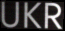
UKR